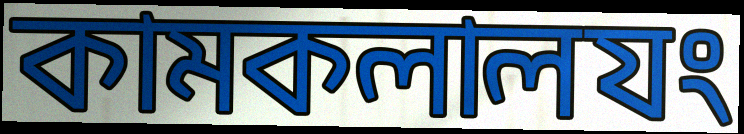
কামকলালযং